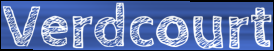
Verdcourt